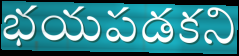
భయపడకని